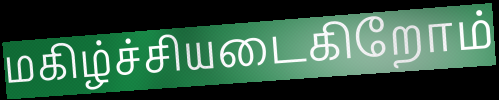
மகிழ்ச்சியடைகிறோம்